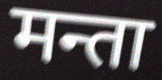
मन्ता